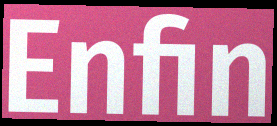
Enfin